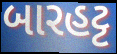
બારહટ્ટ